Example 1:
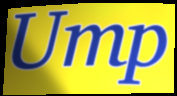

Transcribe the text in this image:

Ump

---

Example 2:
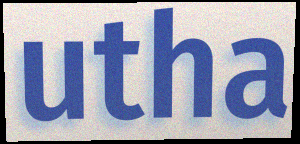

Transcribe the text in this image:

utha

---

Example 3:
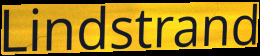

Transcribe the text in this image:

Lindstrand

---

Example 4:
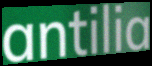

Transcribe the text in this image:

antilia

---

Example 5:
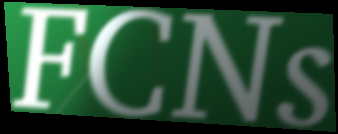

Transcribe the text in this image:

FCNs